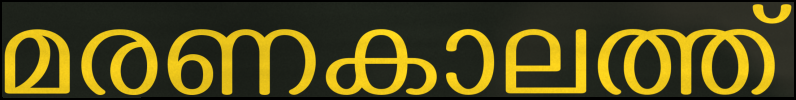
മരണകാലത്ത്